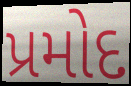
પ્રમોદ